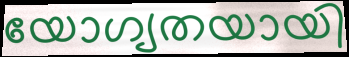
യോഗ്യതയായി